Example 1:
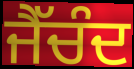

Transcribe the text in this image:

ਜੈੱਚੰਦ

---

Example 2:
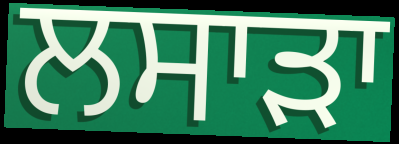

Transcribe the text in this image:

ਲਸਾੜਾ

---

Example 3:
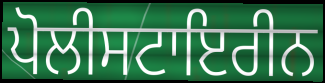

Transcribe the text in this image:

ਪੋਲੀਸਟਾਇਰੀਨ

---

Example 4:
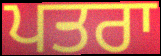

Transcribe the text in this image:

ਪਤਰਾ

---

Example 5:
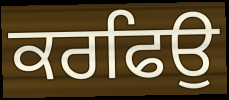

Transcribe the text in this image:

ਕਰਫਿਉ